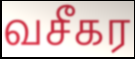
வசீகர